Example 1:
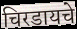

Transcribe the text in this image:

चिरडायचे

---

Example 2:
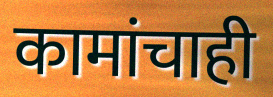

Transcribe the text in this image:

कामांचाही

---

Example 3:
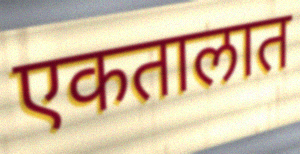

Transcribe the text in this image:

एकतालात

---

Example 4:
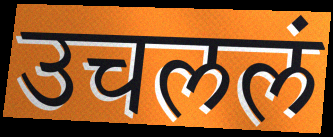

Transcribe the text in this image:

उचललं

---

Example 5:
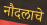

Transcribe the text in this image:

नौदलाचे